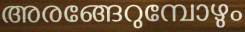
അരങ്ങേറുമ്പോഴും